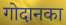
गोदानका